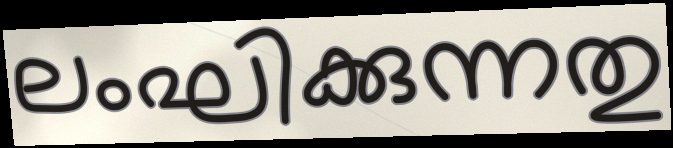
ലംഘിക്കുന്നതു